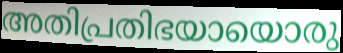
അതിപ്രതിഭയായൊരു